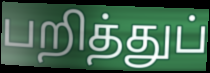
பறித்துப்